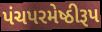
પંચપરમેષ્ઠીરૂપ